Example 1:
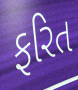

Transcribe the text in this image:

ફરિત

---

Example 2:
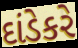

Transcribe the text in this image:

દાંડેકરે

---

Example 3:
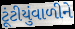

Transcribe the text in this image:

ટૂંટીયુંવાળીને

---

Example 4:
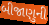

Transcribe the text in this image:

બીજાણુની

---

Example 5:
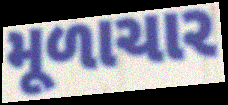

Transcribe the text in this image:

મૂળાચાર